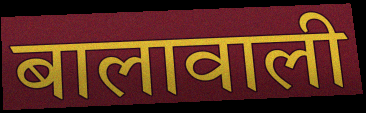
बालावाली